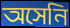
অসেনি